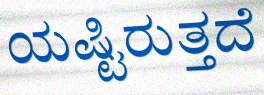
ಯಷ್ಟಿರುತ್ತದೆ